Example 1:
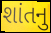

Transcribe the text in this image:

શાંતનુ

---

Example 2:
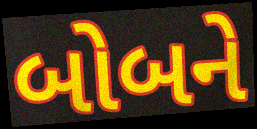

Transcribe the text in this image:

બોબને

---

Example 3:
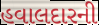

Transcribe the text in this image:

હવાલદારની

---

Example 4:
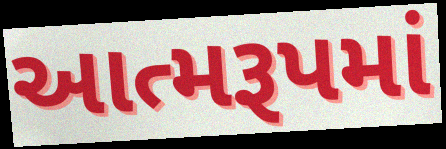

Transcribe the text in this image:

આત્મરૂપમાં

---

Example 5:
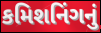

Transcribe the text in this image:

કમિશનિંગનું